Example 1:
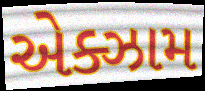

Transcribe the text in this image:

એક્ઝામ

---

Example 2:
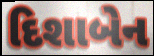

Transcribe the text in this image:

દિશાબેન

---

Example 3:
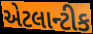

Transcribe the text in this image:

એટલાન્ટીક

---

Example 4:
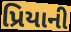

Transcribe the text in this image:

પ્રિયાની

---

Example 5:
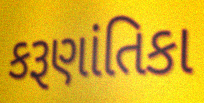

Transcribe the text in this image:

કરૂણાંતિકા